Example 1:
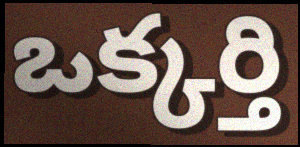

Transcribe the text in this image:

ఒక్కర్తి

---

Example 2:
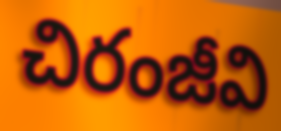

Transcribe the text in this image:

చిరంజీవి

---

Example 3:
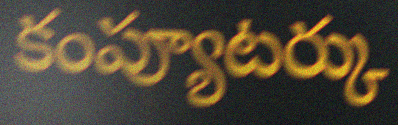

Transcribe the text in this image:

కంప్యూటర్కు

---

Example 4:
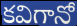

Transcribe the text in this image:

కవిగానో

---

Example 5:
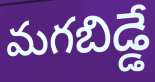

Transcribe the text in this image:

మగబిడ్డే